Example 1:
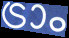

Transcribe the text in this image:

ട്രാം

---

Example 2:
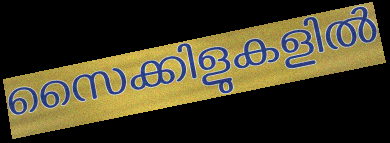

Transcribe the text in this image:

സൈക്കിളുകളിൽ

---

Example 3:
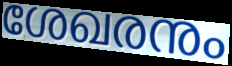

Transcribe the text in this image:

ശേഖരനും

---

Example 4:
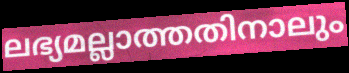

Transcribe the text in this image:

ലഭ്യമല്ലാത്തതിനാലും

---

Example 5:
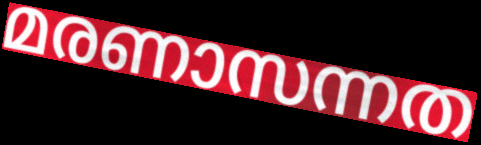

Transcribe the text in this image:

മരണാസന്നത